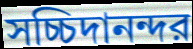
সচ্চিদানন্দর